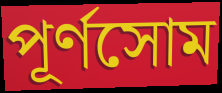
পূর্ণসোম